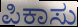
ಪಿಕಾಸು